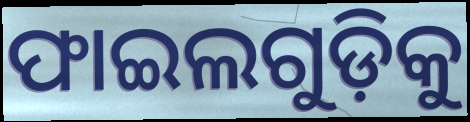
ଫାଇଲଗୁଡ଼ିକୁ